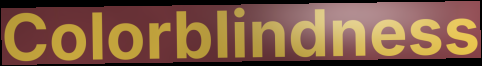
Colorblindness